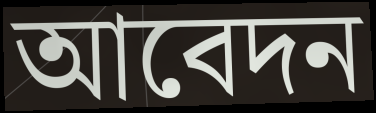
আবেদন